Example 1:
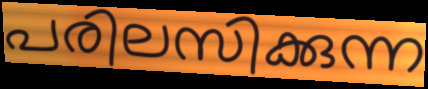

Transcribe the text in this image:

പരിലസിക്കുന്ന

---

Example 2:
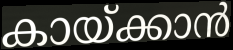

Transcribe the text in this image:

കായ്ക്കാൻ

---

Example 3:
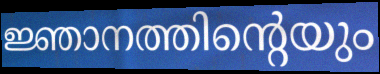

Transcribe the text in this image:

ജ്ഞാനത്തിന്റെയും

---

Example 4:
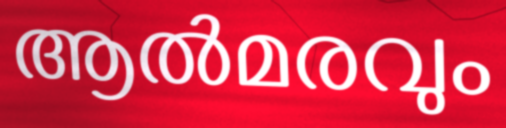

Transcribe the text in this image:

ആൽമരവും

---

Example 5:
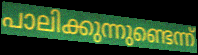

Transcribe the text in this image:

പാലിക്കുന്നുണ്ടെന്ന്